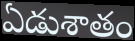
ఏడుశాతం